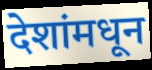
देशांमधून